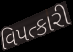
વિપત્કારી